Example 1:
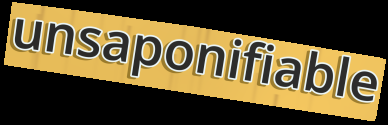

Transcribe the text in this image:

unsaponifiable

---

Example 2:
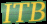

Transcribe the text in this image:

ITB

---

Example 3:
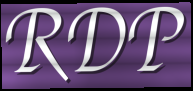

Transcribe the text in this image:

RDP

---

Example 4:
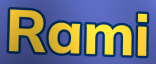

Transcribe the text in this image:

Rami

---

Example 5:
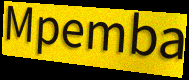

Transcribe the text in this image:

Mpemba